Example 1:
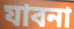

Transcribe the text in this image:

যাবনা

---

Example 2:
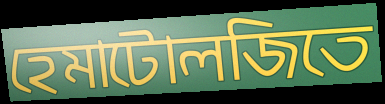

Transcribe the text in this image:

হেমাটোলজিতে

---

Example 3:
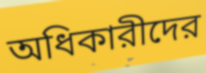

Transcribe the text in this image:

অধিকারীদের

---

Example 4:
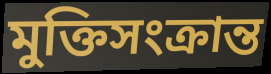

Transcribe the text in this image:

মুক্তিসংক্রান্ত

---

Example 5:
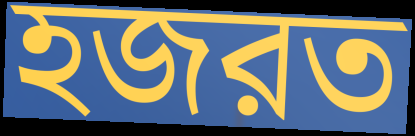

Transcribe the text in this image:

হজরত